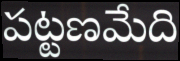
పట్టణమేది